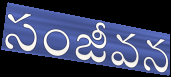
సంజీవన